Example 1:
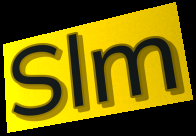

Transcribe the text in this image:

Slm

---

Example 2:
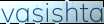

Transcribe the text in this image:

vasishta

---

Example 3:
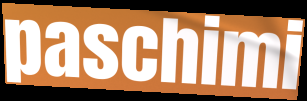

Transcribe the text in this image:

paschimi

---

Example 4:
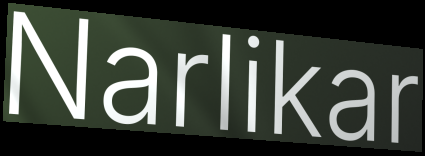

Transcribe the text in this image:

Narlikar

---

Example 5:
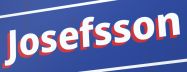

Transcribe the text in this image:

Josefsson